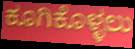
ಕೂಗಿಕೊಳ್ಳಲು